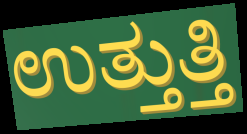
ಉತ್ತುತ್ತಿ